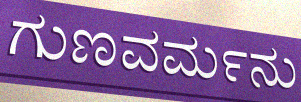
ಗುಣವರ್ಮನು